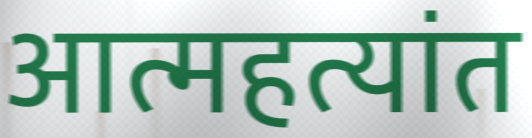
आत्महत्यांत